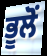
ਭੂਲੋਂ